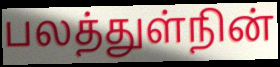
பலத்துள்நின்